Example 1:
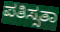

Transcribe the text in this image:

ಪತಿಸ್ಸತಾ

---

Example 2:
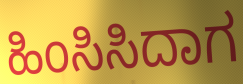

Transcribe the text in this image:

ಹಿಂಸಿಸಿದಾಗ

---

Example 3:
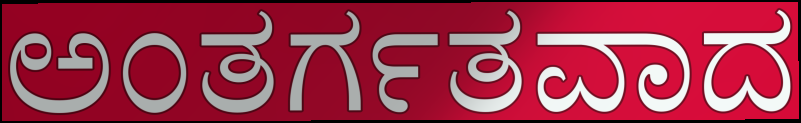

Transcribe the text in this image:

ಅಂತರ್ಗತವಾದ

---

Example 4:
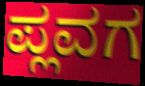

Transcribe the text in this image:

ಪ್ಲವಗ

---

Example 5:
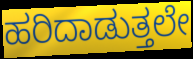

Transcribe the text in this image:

ಹರಿದಾಡುತ್ತಲೇ